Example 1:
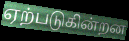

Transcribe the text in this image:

ஏற்படுகின்றன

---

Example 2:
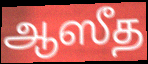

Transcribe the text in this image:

ஆஸீத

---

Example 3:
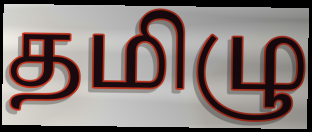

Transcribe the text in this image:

தமிழு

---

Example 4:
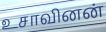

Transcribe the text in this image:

உசாவினன்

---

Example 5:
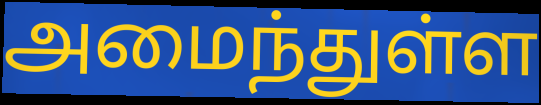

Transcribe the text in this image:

அமைந்துள்ள